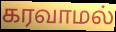
கரவாமல்